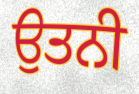
ਉਤਨੀ